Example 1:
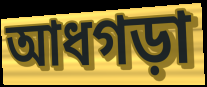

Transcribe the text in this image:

আধগড়া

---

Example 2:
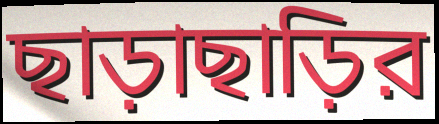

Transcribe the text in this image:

ছাড়াছাড়ির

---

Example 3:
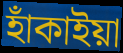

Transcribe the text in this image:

হাঁকাইয়া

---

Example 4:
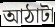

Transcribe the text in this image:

আঠাটা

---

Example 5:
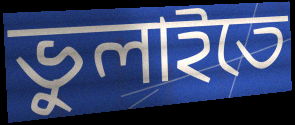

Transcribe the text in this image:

ভুলাইতে